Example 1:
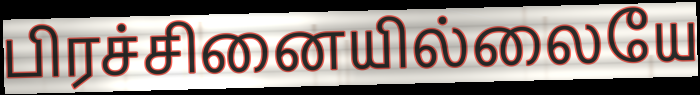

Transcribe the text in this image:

பிரச்சினையில்லையே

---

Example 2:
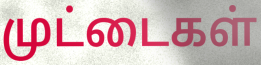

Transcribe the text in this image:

முட்டைகள்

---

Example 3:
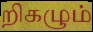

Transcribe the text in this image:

றிகழும்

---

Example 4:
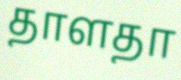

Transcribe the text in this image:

தாளதா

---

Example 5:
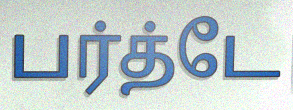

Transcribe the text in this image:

பர்த்டே